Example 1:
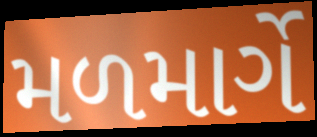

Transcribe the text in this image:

મળમાર્ગે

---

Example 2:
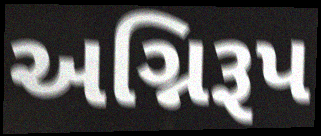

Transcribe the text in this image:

અગ્નિરૂપ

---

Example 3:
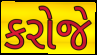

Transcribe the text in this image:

કરોજે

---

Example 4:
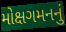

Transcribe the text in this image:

મોક્ષગમનનું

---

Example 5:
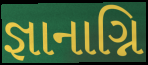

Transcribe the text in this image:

જ્ઞાનાગ્નિ